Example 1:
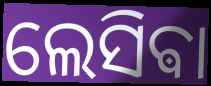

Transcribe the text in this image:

ଲେସିଵା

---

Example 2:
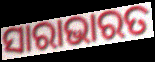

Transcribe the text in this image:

ସାରାଭାରତ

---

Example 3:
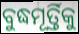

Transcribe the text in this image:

ବୁଦ୍ଧମୂର୍ତ୍ତିକୁ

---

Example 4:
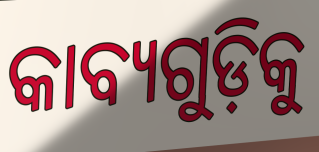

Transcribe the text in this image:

କାବ୍ୟଗୁଡ଼ିକୁ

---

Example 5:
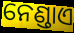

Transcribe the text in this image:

ନେଣ୍ଡାଏ